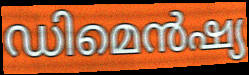
ഡിമെൻഷ്യ